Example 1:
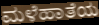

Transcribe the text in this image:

ಮಳೆಹಾತೆಯ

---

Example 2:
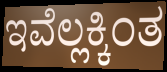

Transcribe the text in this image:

ಇವೆಲ್ಲಕ್ಕಿಂತ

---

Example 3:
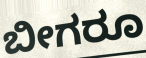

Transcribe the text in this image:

ಬೀಗರೂ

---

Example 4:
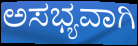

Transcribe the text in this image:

ಅಸಭ್ಯವಾಗಿ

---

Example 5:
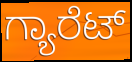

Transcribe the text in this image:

ಗ್ಯಾರೆಟ್